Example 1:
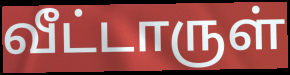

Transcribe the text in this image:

வீட்டாருள்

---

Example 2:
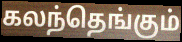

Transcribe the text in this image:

கலந்தெங்கும்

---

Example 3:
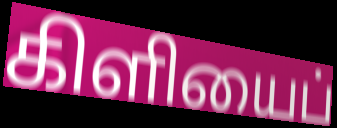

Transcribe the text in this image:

கிளியைப்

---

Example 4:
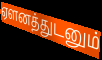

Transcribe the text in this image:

ஏளனத்துடனும்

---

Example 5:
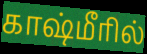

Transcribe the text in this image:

காஷ்மீரில்